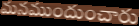
మనముందుంచారు